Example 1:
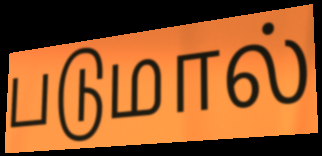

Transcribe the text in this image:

படுமால்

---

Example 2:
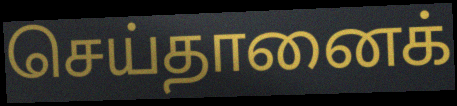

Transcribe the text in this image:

செய்தானைக்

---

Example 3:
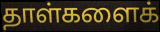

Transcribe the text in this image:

தாள்களைக்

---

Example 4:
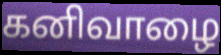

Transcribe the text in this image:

கனிவாழை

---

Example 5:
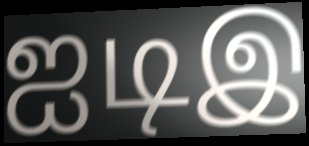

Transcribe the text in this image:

ஐடிஇ